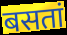
बसतां